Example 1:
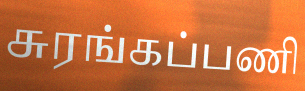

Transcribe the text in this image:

சுரங்கப்பணி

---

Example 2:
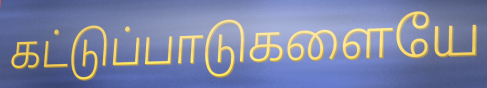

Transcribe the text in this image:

கட்டுப்பாடுகளையே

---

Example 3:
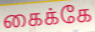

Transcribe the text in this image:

கைக்கே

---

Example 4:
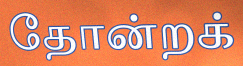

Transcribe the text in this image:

தோன்றக்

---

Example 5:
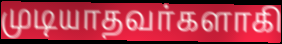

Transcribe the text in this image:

முடியாதவர்களாகி